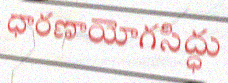
ధారణాయోగసిద్ధు